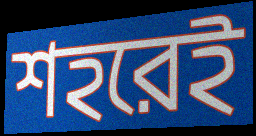
শহরেই